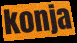
konja